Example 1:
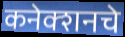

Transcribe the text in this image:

कनेक्शनचे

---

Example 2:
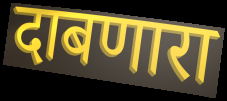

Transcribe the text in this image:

दाबणारा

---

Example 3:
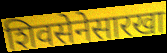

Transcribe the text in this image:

शिवसेनेसारखा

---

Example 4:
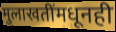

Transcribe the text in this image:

मुलाखतींमधूनही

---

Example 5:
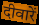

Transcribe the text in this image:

दीवारें